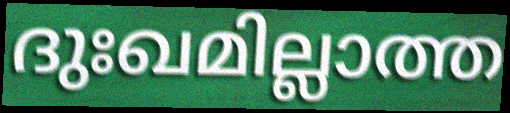
ദുഃഖമില്ലാത്ത